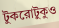
টুকরোটুকুও